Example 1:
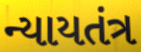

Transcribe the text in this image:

ન્યાયતંત્ર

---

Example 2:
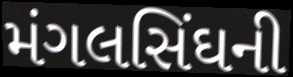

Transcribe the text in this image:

મંગલસિંઘની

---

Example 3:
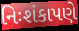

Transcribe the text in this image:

નિઃશંકાપણે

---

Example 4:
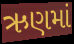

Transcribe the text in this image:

ઋણમાં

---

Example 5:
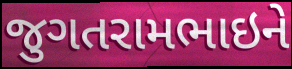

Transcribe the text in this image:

જુગતરામભાઇને